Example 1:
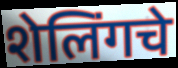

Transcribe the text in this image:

शेलिंगचे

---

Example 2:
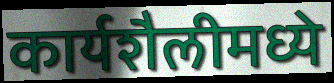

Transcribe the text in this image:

कार्यशैलीमध्ये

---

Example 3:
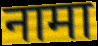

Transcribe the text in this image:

नामा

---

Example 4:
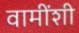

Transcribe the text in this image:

वामींशी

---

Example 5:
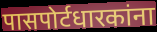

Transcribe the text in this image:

पासपोर्टधारकांना